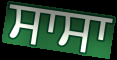
ਸਾਸਾ